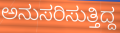
ಅನುಸರಿಸುತ್ತಿದ್ದ